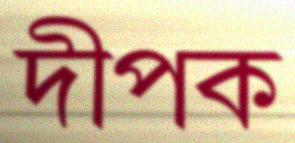
দীপক